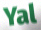
Yal